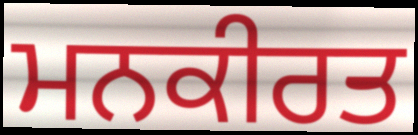
ਮਨਕੀਰਤ